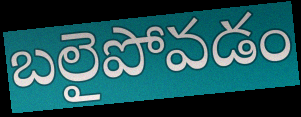
బలైపోవడం